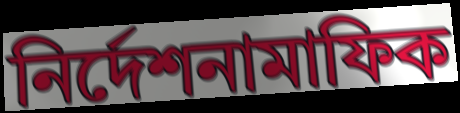
নির্দেশনামাফিক